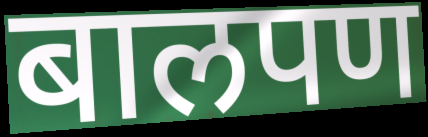
बालपण